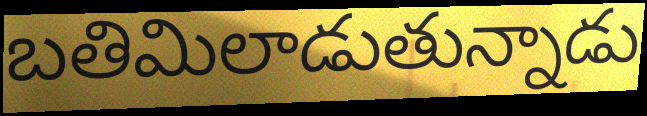
బతిమిలాడుతున్నాడు